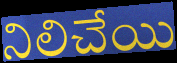
నిలిచేయి